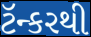
ટૅન્કરથી